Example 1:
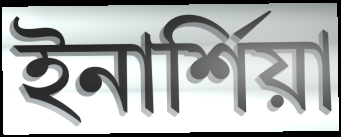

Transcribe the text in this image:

ইনার্শিয়া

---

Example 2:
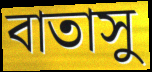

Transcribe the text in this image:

বাতাসু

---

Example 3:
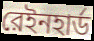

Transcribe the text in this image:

রেইনহার্ড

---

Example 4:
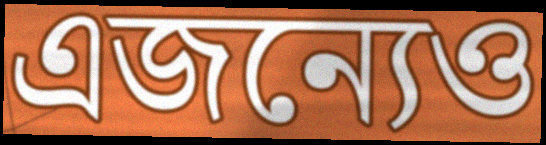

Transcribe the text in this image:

এজন্যেও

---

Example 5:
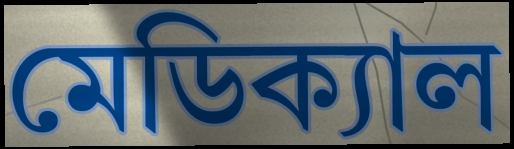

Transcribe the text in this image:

মেডিক্যাল